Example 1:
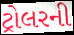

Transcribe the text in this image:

ટ્રોલરની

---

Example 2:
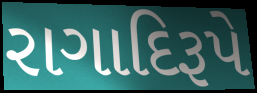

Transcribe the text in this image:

રાગાદિરૂપે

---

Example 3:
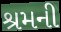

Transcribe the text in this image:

શ્રમની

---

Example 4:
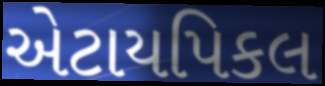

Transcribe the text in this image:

એટાયપિકલ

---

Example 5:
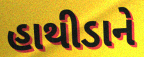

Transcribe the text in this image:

હાથીડાને